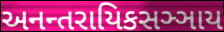
અનન્તરાયિકસઞ્ઞાય